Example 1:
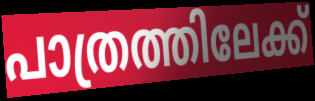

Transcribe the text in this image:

പാത്രത്തിലേക്ക്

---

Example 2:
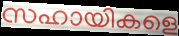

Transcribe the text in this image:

സഹായികളെ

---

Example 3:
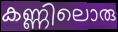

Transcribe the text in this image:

കണ്ണിലൊരു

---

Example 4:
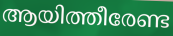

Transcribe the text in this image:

ആയിത്തീരേണ്ട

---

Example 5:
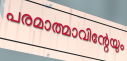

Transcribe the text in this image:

പരമാത്മാവിന്റേയും